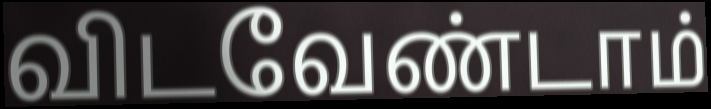
விடவேண்டாம்